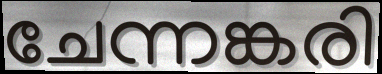
ചേന്നങ്കരി